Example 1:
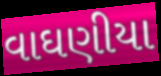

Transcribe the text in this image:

વાઘણીયા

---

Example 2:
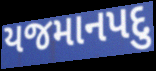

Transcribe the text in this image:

યજમાનપદુ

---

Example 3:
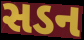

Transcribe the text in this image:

સડન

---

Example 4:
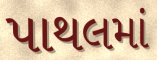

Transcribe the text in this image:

પાથલમાં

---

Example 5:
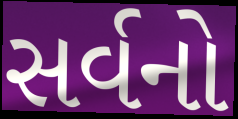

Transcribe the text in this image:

સર્વનો